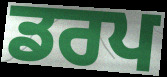
ਡਰਪ